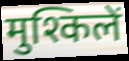
मुश्किलें